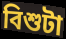
বিশুটা